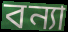
বন্যা